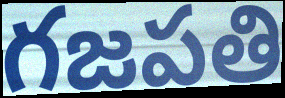
గజపతి